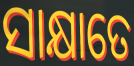
ସାକ୍ଷାତେ